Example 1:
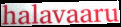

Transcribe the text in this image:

halavaaru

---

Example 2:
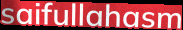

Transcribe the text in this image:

saifullahasm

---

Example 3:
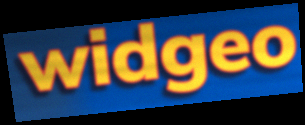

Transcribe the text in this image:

widgeo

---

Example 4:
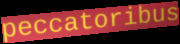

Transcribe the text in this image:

peccatoribus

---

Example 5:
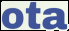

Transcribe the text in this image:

ota